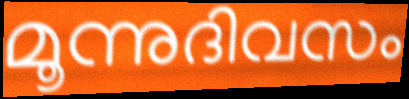
മൂന്നുദിവസം